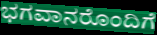
ಭಗವಾನರೊಂದಿಗೆ